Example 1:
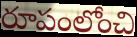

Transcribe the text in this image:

రూపంలోంచి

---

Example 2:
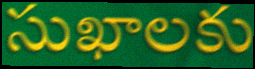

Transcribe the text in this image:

సుఖాలకు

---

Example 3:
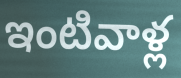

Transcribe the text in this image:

ఇంటివాళ్ల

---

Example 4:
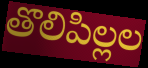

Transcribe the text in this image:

తొలిపిల్లల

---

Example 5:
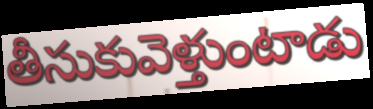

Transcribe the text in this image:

తీసుకువెళ్తుంటాడు